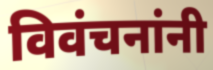
विवंचनांनी